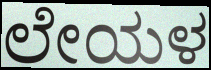
ಲೇಯಳ